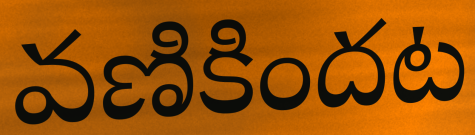
వణికిందట